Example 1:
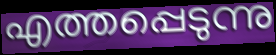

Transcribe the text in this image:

എത്തപ്പെടുന്നു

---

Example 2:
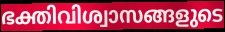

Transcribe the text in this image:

ഭക്തിവിശ്വാസങ്ങളുടെ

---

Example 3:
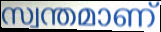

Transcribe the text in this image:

സ്വന്തമാണ്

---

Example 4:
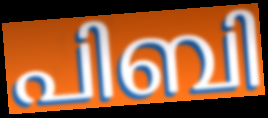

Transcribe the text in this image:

പിബി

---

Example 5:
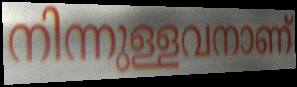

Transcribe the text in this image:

നിന്നുള്ളവനാണ്